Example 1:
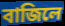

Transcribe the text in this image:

বাজিলে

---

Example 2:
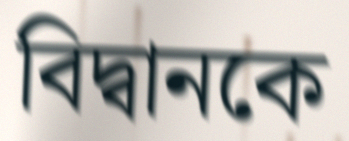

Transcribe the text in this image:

বিদ্বানকে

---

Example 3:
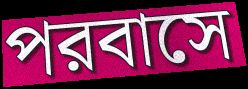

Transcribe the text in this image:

পরবাসে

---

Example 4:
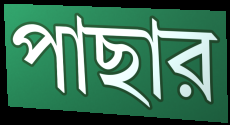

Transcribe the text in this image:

পাছার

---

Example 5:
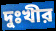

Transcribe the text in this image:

দুঃখীর